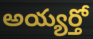
అయ్యర్తో